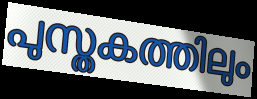
പുസ്തകത്തിലും